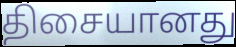
திசையானது